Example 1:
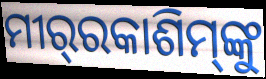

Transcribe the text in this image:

ମୀର୍‌ରକାଶିମ୍‌ଙ୍କୁ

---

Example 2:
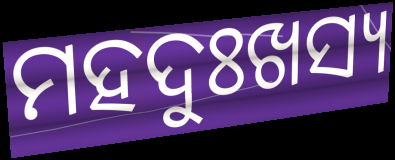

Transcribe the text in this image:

ମହଦୁଃଖସ୍ୟ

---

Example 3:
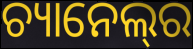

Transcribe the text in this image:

ଚ୍ୟାନେଲ୍‌ର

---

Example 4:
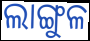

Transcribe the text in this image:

ଲାଙ୍ଗୁଳ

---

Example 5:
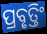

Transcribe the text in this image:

ପ୍ରବୃତ୍ତିଂ